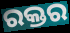
ରକ୍ତର